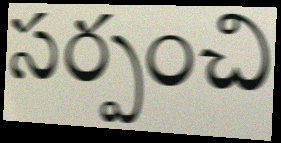
సర్పంచి